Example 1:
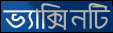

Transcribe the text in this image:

ভ্যাক্সিনটি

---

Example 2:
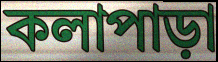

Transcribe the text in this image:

কলাপাড়া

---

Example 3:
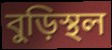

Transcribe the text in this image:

বুড়িস্থল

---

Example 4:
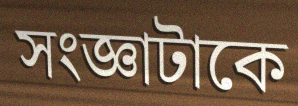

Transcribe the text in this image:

সংজ্ঞাটাকে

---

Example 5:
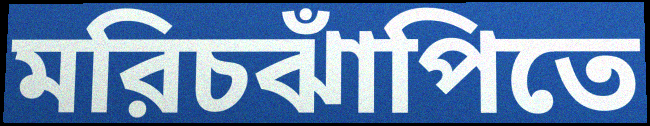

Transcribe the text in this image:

মরিচঝাঁপিতে